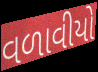
વળાવીયો